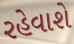
રહેવાશે